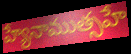
హ్యేనాముత్సహే